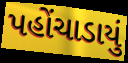
પહોંચાડાયું